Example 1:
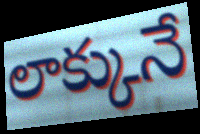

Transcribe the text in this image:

లాక్కునే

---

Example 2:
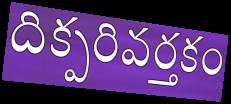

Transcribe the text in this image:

దిక్పరివర్తకం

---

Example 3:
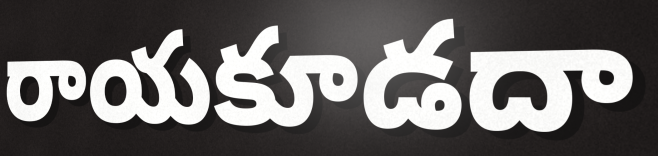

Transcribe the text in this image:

రాయకూడదా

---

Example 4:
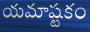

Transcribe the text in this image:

యమాష్టకం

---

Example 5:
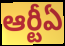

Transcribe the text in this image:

ఆర్టీఏ